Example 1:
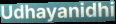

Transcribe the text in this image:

Udhayanidhi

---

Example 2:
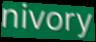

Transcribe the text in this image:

nivory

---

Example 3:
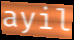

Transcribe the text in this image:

ayil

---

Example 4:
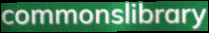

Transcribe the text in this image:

commonslibrary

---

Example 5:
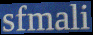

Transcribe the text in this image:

sfmali